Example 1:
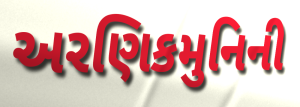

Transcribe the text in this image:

અરણિકમુનિની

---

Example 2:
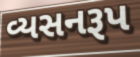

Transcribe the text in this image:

વ્યસનરૂપ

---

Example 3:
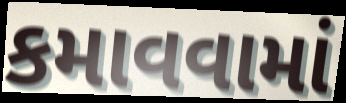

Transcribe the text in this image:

કમાવવામાં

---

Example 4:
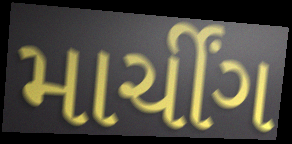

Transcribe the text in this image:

માર્ચીંગ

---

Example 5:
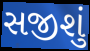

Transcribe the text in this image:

સજીશું